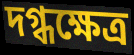
দগ্ধক্ষেত্র